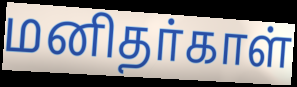
மனிதர்காள்